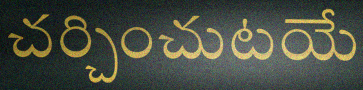
చర్చించుటయే